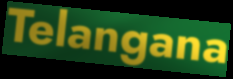
Telangana